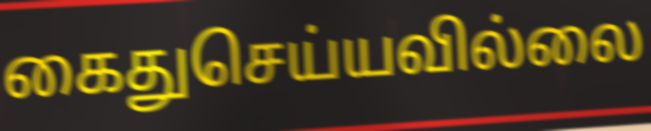
கைதுசெய்யவில்லை